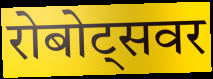
रोबोट्सवर